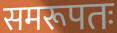
समरूपतः